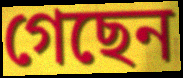
গেছেন